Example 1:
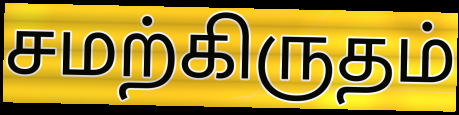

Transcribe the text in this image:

சமற்கிருதம்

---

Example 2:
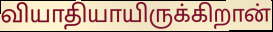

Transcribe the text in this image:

வியாதியாயிருக்கிறான்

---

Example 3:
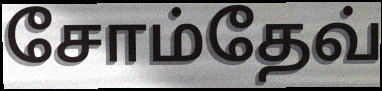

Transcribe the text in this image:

சோம்தேவ்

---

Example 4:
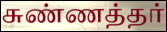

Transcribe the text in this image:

சுண்ணத்தர்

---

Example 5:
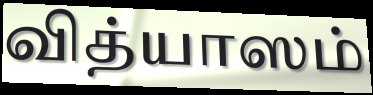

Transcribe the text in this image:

வித்யாஸம்